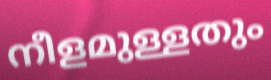
നീളമുള്ളതും